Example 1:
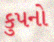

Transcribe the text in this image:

કુપનો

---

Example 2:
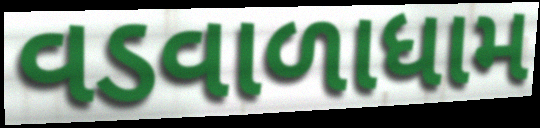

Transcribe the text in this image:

વડવાળાધામ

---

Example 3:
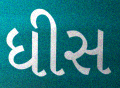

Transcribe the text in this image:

ધીસ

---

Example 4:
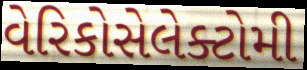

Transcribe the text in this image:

વેરિકોસેલેક્ટોમી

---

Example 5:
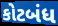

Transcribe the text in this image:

કોટબંધ